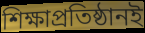
শিক্ষাপ্রতিষ্ঠানই